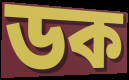
ডক